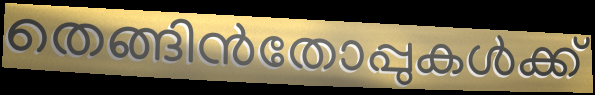
തെങ്ങിൻതോപ്പുകൾക്ക്